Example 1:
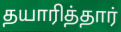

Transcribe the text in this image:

தயாரித்தார்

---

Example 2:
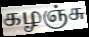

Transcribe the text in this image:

கழஞ்சு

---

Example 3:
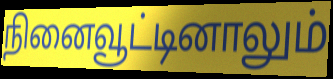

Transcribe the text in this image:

நினைவூட்டினாலும்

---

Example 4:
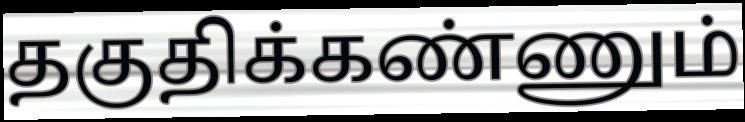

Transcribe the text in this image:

தகுதிக்கண்ணும்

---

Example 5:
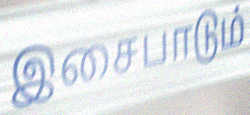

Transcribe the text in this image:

இசைபாடும்